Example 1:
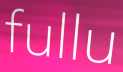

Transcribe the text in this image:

fullu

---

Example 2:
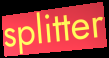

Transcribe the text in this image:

splitter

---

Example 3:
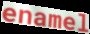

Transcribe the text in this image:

enamel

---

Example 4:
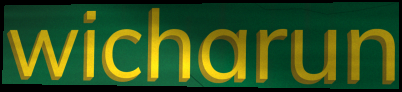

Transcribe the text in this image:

wicharun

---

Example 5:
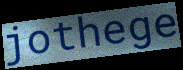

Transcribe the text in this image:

jothege